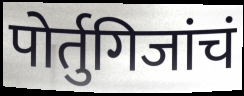
पोर्तुगिजांचं